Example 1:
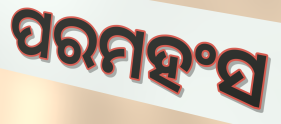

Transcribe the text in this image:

ପରମହଂସ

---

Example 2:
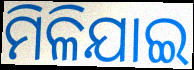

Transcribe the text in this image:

ମିଳିଯାଇ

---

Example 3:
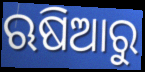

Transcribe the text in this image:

ଋଷିଆରୁ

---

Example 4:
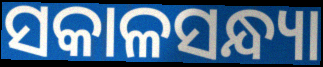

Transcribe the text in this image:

ସକାଳସନ୍ଧ୍ୟା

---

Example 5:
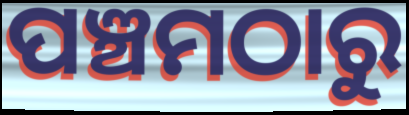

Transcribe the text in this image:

ପଞ୍ଚମଠାରୁ